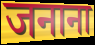
जनाना